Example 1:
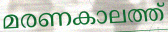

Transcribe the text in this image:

മരണകാലത്ത്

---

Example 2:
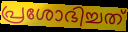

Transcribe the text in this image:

പ്രശോഭിച്ചത്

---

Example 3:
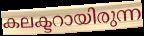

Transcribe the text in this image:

കലക്ടറായിരുന്ന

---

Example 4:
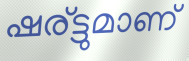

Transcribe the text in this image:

ഷര്ട്ടുമാണ്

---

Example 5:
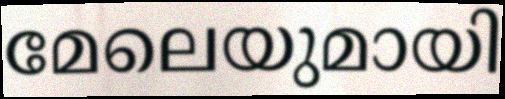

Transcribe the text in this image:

മേലെയുമായി